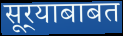
सूर्याबाबत